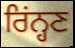
ਰਿਂਨ੍ਹਣ